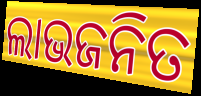
ଲାଭଜନିତ